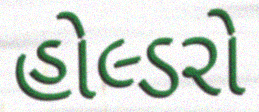
હોલ્ડરો